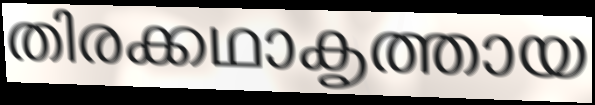
തിരക്കഥാകൃത്തായ